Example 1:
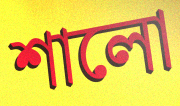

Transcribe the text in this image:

শালো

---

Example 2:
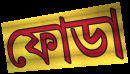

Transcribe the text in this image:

ফোডা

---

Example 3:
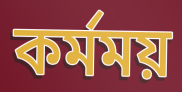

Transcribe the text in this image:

কর্মময়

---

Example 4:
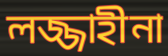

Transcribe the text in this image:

লজ্জাহীনা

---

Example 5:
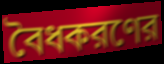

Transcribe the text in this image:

বৈধকরণের